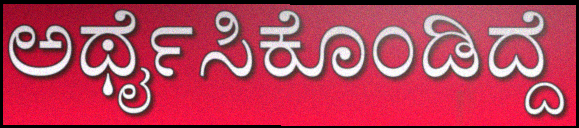
ಅರ್ಥೈಸಿಕೊಂಡಿದ್ದೆ